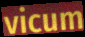
vicum